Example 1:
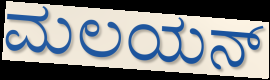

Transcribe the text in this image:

ಮಲಯನ್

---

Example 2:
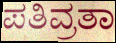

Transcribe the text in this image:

ಪತಿವ್ರತಾ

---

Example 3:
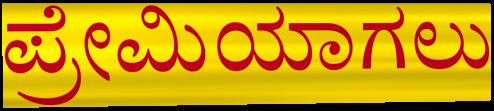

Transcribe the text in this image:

ಪ್ರೇಮಿಯಾಗಲು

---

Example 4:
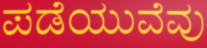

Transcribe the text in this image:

ಪಡೆಯುವೆವು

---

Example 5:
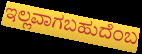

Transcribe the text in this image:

ಇಲ್ಲವಾಗಬಹುದೆಂಬ